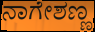
ನಾಗೇಶಣ್ಣ